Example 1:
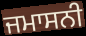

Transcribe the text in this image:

ਜਮਾਸਨੀ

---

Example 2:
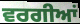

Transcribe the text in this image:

ਵਰਗੀਆਂ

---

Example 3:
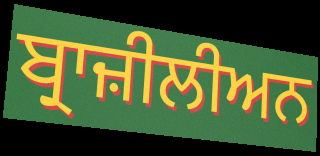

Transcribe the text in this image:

ਬ੍ਰਾਜ਼ੀਲੀਅਨ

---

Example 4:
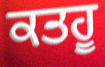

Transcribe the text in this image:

ਕਤਹੂ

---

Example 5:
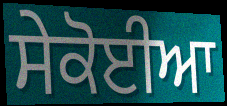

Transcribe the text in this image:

ਸੇਕੋਈਆ